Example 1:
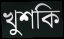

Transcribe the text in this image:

খুশকি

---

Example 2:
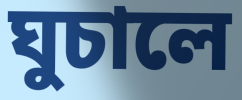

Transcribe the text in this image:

ঘুচালে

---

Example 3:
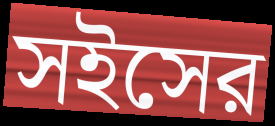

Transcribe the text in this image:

সইসের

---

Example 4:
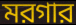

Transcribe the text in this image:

মরগার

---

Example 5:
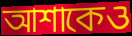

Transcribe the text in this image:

আশাকেও